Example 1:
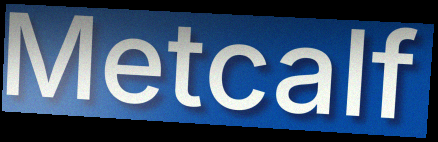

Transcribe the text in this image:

Metcalf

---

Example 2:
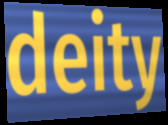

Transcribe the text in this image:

deity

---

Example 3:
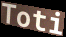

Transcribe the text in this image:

Toti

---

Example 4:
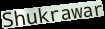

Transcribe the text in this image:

Shukrawar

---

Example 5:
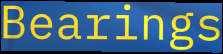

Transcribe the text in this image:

Bearings